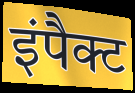
इंपैक्ट